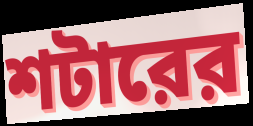
শটারের